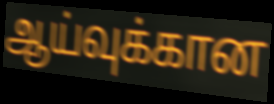
ஆய்வுக்கான